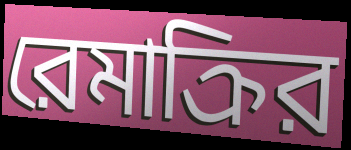
রেমাক্রির